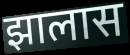
झालास